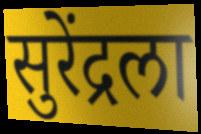
सुरेंद्रला